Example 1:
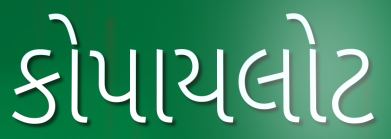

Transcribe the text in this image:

કોપાયલોટ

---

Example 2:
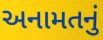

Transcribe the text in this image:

અનામતનું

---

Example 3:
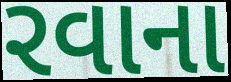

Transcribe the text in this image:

રવાના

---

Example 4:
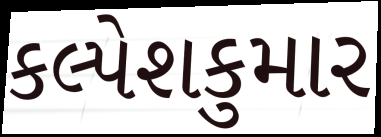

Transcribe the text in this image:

કલ્પેશકુમાર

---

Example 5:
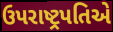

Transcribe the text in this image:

ઉપરાષ્ટ્રપતિએ